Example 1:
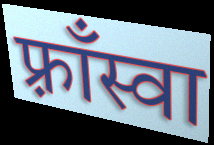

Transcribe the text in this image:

फ़्राँस्वा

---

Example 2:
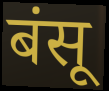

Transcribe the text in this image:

बंसू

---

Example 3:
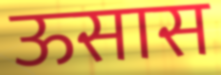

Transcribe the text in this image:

ऊसास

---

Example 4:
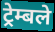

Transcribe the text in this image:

ट्रेम्बले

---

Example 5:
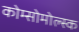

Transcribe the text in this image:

कोम्सोमोल्स्क